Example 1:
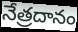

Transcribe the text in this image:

నేత్రదానం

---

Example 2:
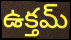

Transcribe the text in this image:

ఉక్తమ్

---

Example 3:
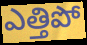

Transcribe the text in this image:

ఎత్తిపో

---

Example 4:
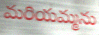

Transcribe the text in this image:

మరియమ్మను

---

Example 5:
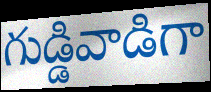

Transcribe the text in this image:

గుడ్డివాడిగా